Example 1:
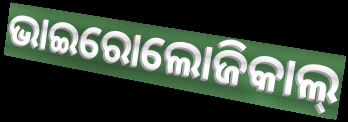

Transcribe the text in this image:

ଭାଇରୋଲୋଜିକାଲ୍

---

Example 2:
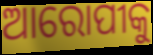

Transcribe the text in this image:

ଆରୋପୀକୁ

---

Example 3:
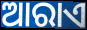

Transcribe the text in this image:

ଆରାଏ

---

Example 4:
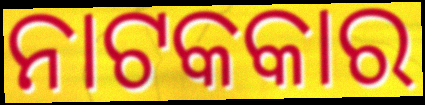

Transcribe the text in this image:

ନାଟକକାର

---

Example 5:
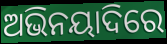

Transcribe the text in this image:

ଅଭିନୟାଦିରେ